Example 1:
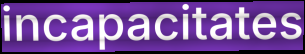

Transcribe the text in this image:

incapacitates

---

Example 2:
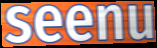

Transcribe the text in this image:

seenu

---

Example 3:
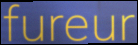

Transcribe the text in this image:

fureur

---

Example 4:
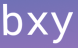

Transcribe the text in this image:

bxy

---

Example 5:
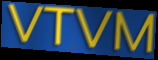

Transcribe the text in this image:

VTVM